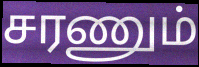
சரணும்